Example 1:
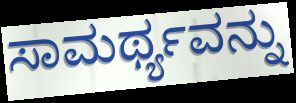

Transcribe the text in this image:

ಸಾಮರ್ಥ್ಯವನ್ನು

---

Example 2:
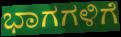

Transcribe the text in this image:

ಭಾಗಗಳಿಗೆ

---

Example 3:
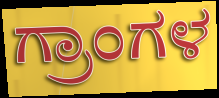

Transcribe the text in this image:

ಗ್ರಾಂಗಳ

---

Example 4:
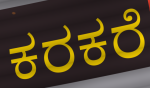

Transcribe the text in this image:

ಕರಕರೆ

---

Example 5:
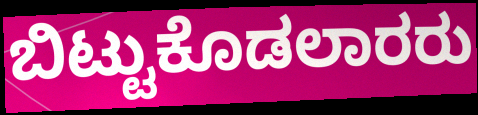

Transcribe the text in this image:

ಬಿಟ್ಟುಕೊಡಲಾರರು